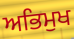
ਅਭਿਮੁਖ